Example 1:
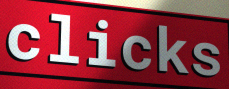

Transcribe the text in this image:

clicks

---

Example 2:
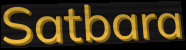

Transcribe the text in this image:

Satbara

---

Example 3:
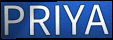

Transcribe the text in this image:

PRIYA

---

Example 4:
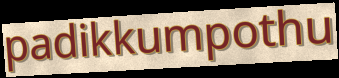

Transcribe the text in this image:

padikkumpothu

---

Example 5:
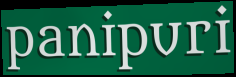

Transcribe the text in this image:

panipuri